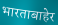
भारताबाहेर